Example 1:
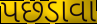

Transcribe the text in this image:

પછડાવા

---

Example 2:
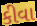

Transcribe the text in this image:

કીવા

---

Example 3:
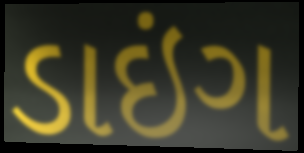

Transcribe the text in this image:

ડાઇંગ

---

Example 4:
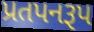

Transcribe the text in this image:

પ્રતપનરૂપ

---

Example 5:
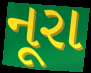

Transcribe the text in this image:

નૂરા